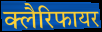
क्लैरिफायर